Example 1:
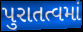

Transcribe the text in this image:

પુરાતત્વમાં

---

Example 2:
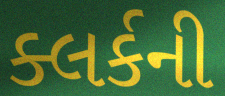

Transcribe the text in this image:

ક્લર્કની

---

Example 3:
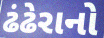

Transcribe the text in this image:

ઢંઢેરાનો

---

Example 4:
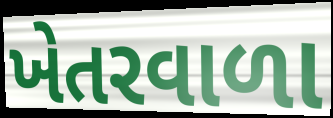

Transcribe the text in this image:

ખેતરવાળા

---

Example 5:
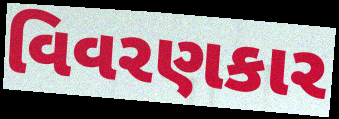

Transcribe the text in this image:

વિવરણકાર